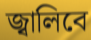
জ্বালিবে